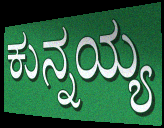
ಕುನ್ನಯ್ಯ